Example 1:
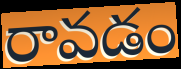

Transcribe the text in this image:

రావడం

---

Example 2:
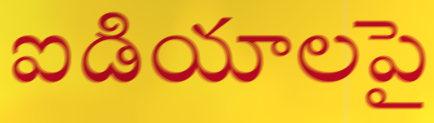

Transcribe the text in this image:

ఐడియాలపై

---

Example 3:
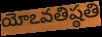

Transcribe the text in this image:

యోఽవతిష్ఠతి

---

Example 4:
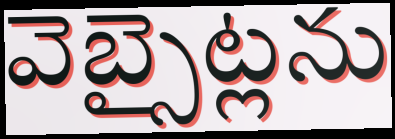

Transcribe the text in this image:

వెబ్సైట్లను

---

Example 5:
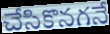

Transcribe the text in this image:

చేసికొనగనే